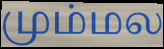
மும்மல